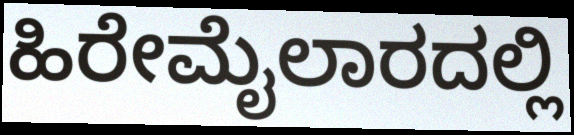
ಹಿರೇಮೈಲಾರದಲ್ಲಿ